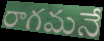
రాగమనే